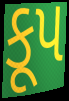
કૂપ